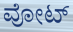
ವೋಟ್